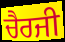
ਚੈਰਜੀ